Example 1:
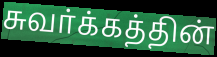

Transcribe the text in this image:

சுவர்க்கத்தின்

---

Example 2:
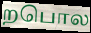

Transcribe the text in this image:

றபொல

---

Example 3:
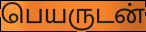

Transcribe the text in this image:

பெயருடன்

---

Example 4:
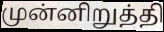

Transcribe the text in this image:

முன்னிறுத்தி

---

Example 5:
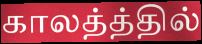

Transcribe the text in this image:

காலத்த்தில்